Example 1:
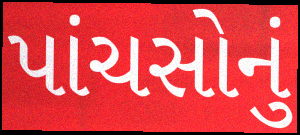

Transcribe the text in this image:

પાંચસોનું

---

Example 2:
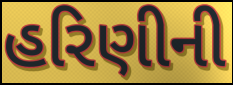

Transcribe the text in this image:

હરિણીની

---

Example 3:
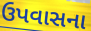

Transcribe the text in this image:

ઉપવાસના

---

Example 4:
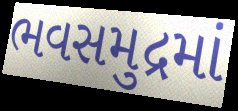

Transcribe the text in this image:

ભવસમુદ્રમાં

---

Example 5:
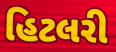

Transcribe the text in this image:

હિટલરી